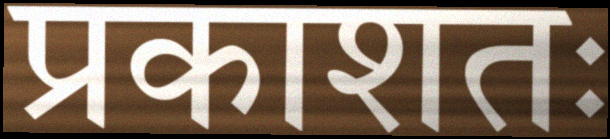
प्रकाशतः